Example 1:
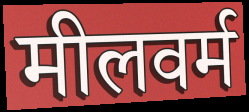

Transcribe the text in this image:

मीलवर्म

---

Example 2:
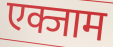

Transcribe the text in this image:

एक्जाम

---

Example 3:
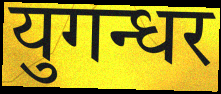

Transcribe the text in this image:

युगन्धर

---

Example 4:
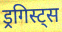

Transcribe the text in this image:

ड्रगिस्ट्स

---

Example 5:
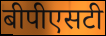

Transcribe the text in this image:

बीपीएसटी